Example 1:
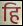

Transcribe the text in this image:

हि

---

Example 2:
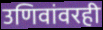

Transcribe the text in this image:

उणिवांवरही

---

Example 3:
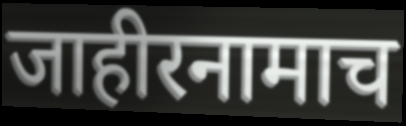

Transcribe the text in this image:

जाहीरनामाच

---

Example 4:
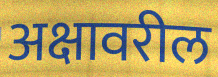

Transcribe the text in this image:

अक्षावरील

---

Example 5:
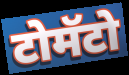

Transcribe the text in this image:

टोमॅटो